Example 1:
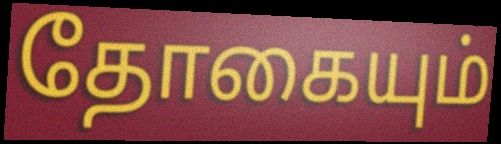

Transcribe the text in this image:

தோகையும்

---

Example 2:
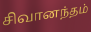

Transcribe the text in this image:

சிவானந்தம்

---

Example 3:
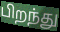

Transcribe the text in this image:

பிறந்து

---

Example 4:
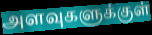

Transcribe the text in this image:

அளவுகளுக்குள்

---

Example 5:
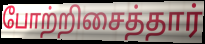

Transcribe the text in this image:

போற்றிசைத்தார்